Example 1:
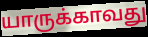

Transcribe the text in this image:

யாருக்காவது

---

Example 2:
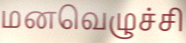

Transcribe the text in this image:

மனவெழுச்சி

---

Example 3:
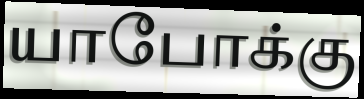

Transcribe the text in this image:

யாபோக்கு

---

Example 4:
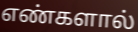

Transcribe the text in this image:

எண்களால்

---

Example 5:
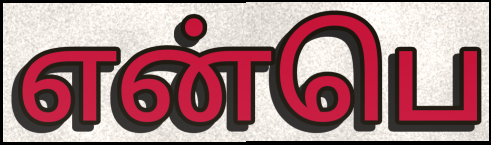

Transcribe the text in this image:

என்பெ